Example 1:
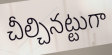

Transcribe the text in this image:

చీల్చినట్టుగా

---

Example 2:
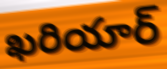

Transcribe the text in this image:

ఖరియార్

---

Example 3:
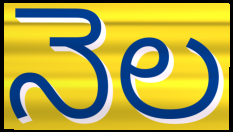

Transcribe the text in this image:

నెల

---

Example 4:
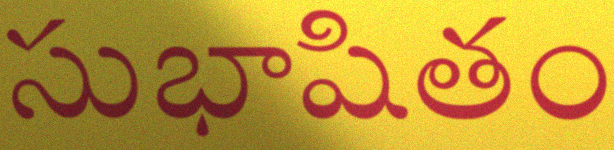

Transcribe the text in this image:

సుభాషితం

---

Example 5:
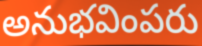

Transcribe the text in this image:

అనుభవింపరు